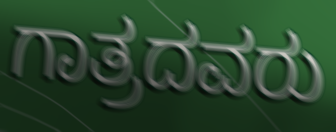
ಗಾತ್ರದವರು